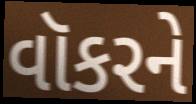
વૉકરને